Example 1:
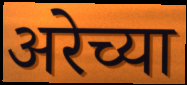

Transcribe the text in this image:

अरेच्या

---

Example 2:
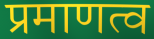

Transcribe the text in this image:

प्रमाणत्व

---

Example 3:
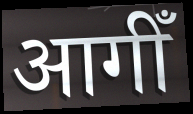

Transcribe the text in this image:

आगीँ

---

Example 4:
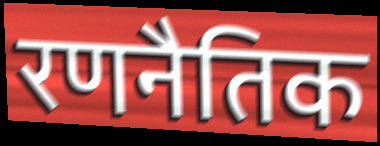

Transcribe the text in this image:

रणनैतिक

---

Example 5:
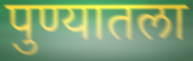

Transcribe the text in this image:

पुण्यातला